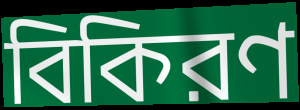
বিকিরণ